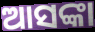
ଆସଙ୍କା